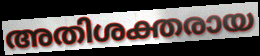
അതിശക്തരായ